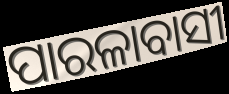
ପାରଳାବାସୀ